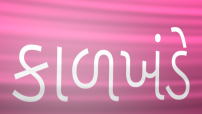
કાળખંડે